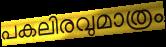
പകലിരവുമാത്രം